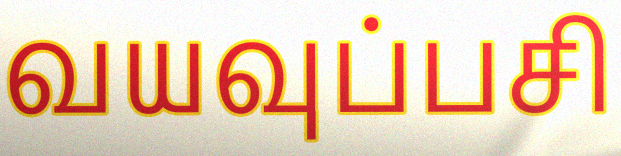
வயவுப்பசி